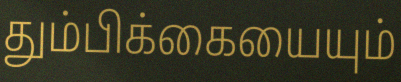
தும்பிக்கையையும்